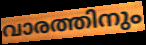
വാരത്തിനും